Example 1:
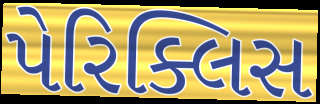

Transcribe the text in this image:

પેરિક્લિસ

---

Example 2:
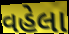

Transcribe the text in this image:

વહેલા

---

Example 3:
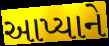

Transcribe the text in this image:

આપ્યાને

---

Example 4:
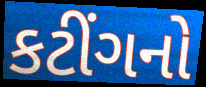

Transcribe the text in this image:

કટીંગનો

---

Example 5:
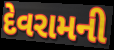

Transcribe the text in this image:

દેવરામની